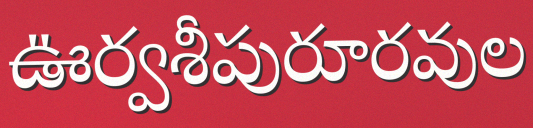
ఊర్వశీపురూరవుల